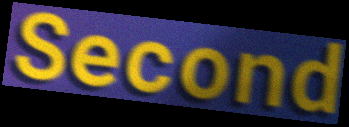
Second